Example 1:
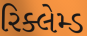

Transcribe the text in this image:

રિક્લેમ્ડ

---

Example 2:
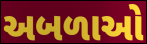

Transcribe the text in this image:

અબળાઓ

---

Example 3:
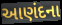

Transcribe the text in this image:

આણંદના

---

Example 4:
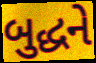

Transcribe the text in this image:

બુદ્ધને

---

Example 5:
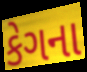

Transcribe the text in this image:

કેગના